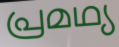
പ്രമഥ്യ